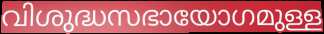
വിശുദ്ധസഭായോഗമുള്ള